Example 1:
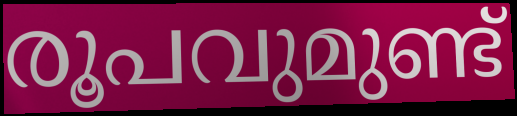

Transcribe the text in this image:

രൂപവുമുണ്ട്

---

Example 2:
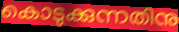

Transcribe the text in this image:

കൊടുക്കുന്നതിനു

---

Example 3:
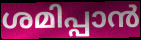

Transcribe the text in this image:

ശമിപ്പാൻ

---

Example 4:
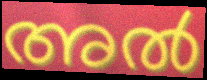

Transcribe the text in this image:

അൽ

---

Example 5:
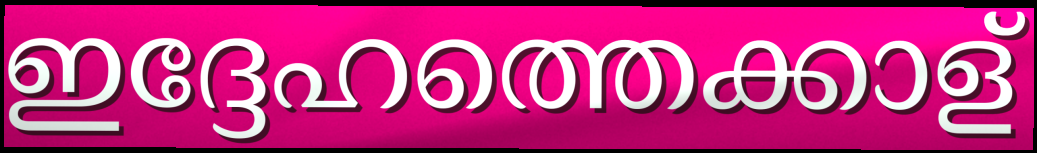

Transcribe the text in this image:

ഇദ്ദേഹത്തെക്കാള്